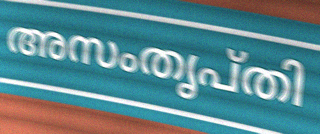
അസംതൃപ്തി